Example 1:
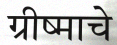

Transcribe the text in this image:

ग्रीष्माचे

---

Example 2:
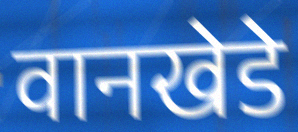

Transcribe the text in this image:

वानखेडे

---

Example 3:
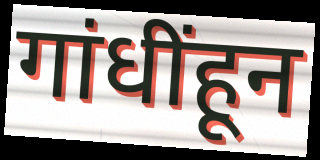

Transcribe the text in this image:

गांधींहून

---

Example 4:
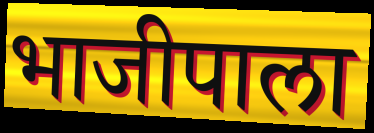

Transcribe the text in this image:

भाजीपाला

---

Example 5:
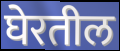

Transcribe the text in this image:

घेरतील